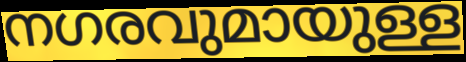
നഗരവുമായുള്ള